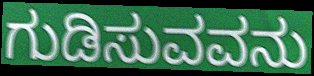
ಗುಡಿಸುವವನು